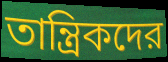
তান্ত্রিকদের